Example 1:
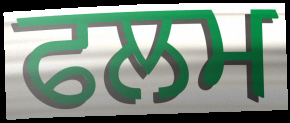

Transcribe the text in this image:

ਫਲਮ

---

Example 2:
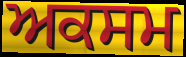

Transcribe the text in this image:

ਅਕਸਮ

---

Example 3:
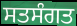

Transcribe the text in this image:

ਸਤਸੰਗਤ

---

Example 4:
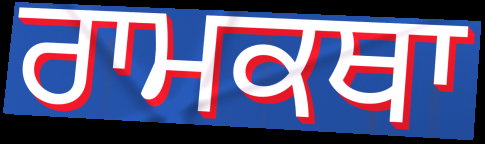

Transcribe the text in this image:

ਰਾਮਕਥਾ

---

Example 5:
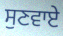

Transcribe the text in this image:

ਸੁਣਵਾਏ